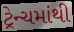
ટ્રેન્ચમાંથી